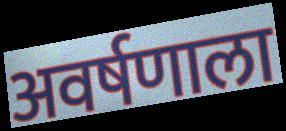
अवर्षणाला